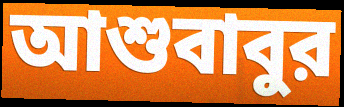
আশুবাবুর